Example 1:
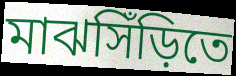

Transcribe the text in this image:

মাঝসিঁড়িতে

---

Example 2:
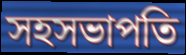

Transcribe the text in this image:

সহসভাপতি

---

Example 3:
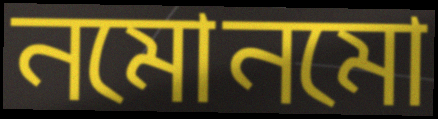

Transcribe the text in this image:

নমোনমো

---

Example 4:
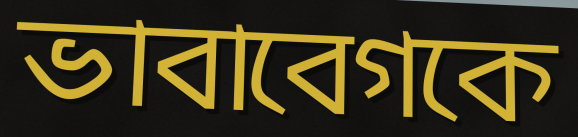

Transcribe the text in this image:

ভাবাবেগকে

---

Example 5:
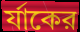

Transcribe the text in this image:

র্যাকের